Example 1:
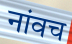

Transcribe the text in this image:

नांवच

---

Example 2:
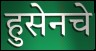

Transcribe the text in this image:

हुसेनचे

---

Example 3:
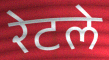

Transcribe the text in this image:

रेटले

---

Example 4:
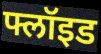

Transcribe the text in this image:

फ्लॉइड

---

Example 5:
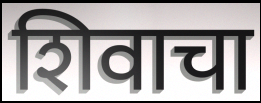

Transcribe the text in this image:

शिवाचा